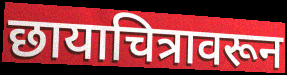
छायाचित्रावरून